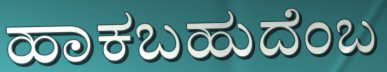
ಹಾಕಬಹುದೆಂಬ